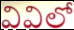
వివిలో